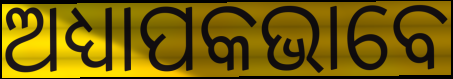
ଅଧ୍ୟାପକଭାବେ